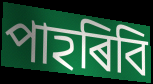
পাহৰিবি